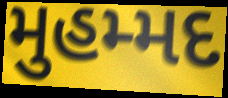
મુહમ્મદ